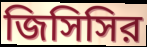
জিসিসির